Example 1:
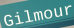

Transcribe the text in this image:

Gilmour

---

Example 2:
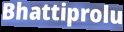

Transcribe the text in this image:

Bhattiprolu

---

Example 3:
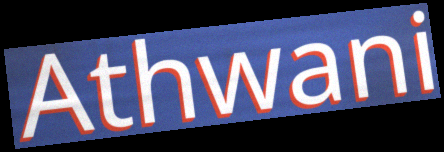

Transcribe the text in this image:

Athwani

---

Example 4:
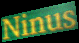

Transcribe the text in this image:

Ninus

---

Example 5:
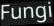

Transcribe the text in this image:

Fungi